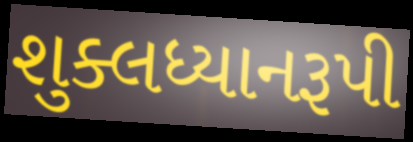
શુક્લધ્યાનરૂપી